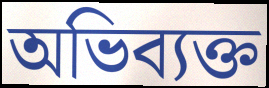
অভিব্যক্ত